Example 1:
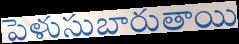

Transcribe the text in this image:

పెళుసుబారుతాయి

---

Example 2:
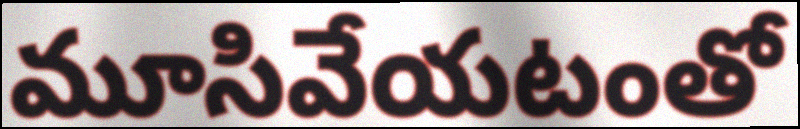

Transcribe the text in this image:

మూసివేయటంతో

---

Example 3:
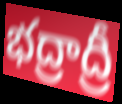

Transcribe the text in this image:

భద్రాద్రీ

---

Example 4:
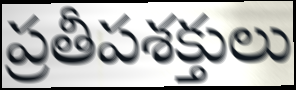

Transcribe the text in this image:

ప్రతీపశక్తులు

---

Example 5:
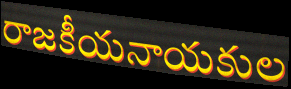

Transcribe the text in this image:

రాజకీయనాయకుల